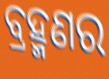
ବ୍ରହ୍ମଣର